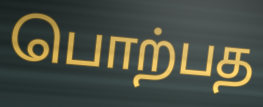
பொற்பத